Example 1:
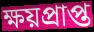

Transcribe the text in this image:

ক্ষয়প্রাপ্ত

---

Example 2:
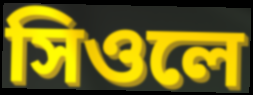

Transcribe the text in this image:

সিওলে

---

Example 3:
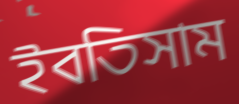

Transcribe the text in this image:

ইবতিসাম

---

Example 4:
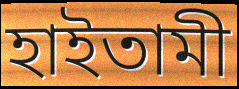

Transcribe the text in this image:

হাইতামী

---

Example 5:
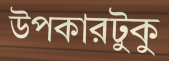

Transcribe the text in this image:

উপকারটুকু